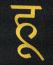
हू